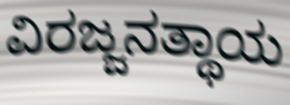
ವಿರಜ್ಜನತ್ಥಾಯ